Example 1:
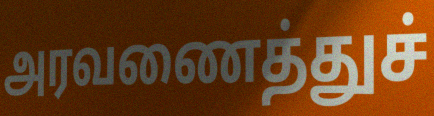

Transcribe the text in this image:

அரவணைத்துச்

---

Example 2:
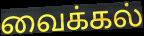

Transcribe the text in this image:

வைக்கல்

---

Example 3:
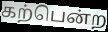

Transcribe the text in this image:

கற்பென்ற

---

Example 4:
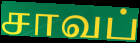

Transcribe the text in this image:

சாவப்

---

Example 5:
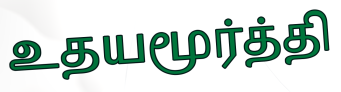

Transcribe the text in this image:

உதயமூர்த்தி